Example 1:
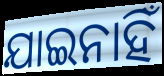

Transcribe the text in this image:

ଯାଇନାହିଁ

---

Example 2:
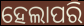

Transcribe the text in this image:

ହେଲାପରି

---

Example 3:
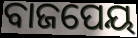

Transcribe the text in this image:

ବାଜପେୟ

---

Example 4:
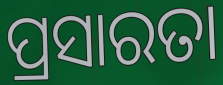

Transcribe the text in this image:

ପ୍ରସାରତା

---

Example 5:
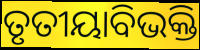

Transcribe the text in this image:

ତୃତୀୟାବିଭକ୍ତି